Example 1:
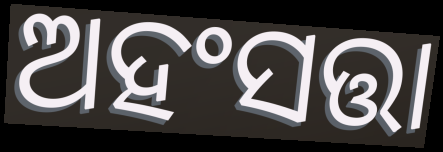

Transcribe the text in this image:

ଅହଂସତ୍ତା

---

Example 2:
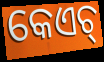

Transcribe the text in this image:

କେଏଚ୍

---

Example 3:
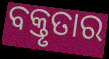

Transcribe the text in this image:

ବକ୍ତୃତାର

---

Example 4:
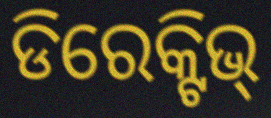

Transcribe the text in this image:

ଡିରେକ୍ଟିଭ୍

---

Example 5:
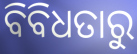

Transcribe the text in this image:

ବିବିଧତାରୁ